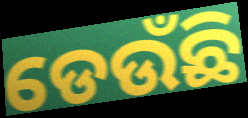
ଡେଉଁଛି